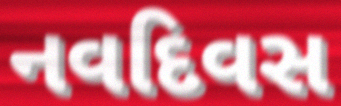
નવદિવસ